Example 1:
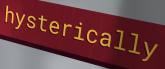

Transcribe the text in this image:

hysterically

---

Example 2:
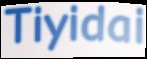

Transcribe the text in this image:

Tiyidai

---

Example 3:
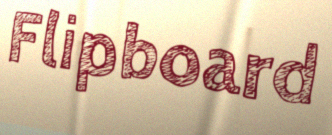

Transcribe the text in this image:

Flipboard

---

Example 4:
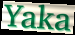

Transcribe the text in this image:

Yaka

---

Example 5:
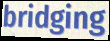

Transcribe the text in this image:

bridging